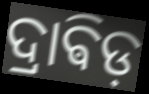
ଦ୍ରାଵିଡ଼